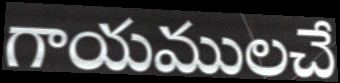
గాయములచే